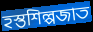
হস্তশিল্পজাত